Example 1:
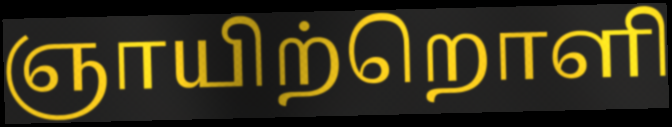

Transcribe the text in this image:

ஞாயிற்றொளி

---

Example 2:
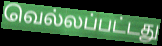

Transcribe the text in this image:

வெல்லப்பட்டது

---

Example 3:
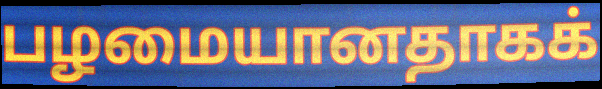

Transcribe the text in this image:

பழமையானதாகக்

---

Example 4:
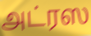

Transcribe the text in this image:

அட்ரஸ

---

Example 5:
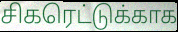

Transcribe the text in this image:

சிகரெட்டுக்காக